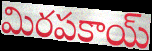
మిరపకాయ్